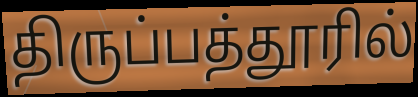
திருப்பத்தூரில்